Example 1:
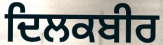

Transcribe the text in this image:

ਦਿਲਕਬੀਰ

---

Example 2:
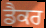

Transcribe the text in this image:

ਡੈਕਰ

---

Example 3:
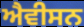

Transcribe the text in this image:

ਐਵੀਸਨ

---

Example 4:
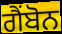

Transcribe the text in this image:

ਗੈਂਬੋਨ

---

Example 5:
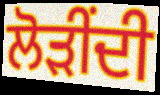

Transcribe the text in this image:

ਲੋੜੀਂਦੀ